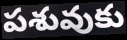
పశువుకు